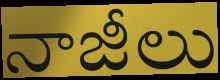
నాజీలు